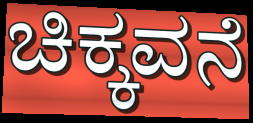
ಚಿಕ್ಕವನೆ